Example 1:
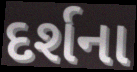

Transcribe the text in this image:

દર્શના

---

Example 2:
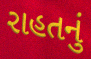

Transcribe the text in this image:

રાહતનું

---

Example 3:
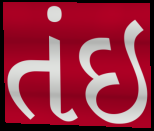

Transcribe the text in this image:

તંઇ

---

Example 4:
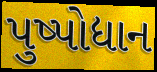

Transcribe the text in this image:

પુષ્પોદ્યાન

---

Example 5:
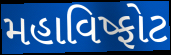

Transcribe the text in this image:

મહાવિષ્ફોટ